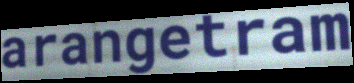
arangetram